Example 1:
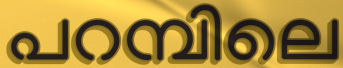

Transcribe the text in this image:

പറമ്പിലെ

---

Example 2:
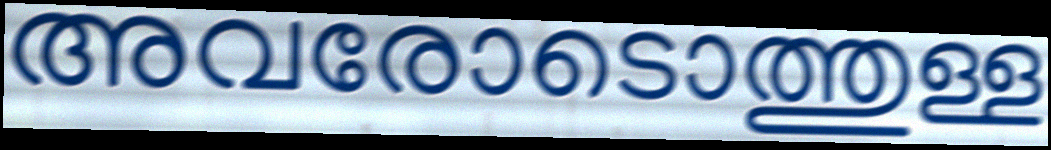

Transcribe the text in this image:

അവരോടൊത്തുള്ള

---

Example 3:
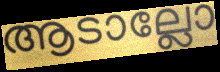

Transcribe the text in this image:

ആടാല്ലോ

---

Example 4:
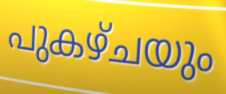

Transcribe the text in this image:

പുകഴ്ചയും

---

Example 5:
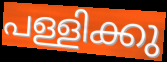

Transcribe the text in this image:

പള്ളിക്കു